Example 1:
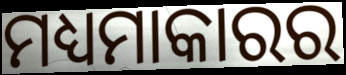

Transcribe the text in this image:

ମଧ୍ୟମାକାରର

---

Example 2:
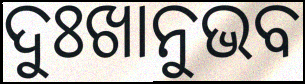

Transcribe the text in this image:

ଦୁଃଖାନୁଭବ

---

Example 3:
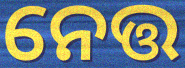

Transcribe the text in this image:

ନେତ୍ତ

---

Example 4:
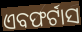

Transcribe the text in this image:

ଏବଫର୍ଟାସ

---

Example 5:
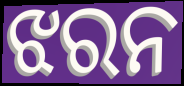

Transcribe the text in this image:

ଝରନ